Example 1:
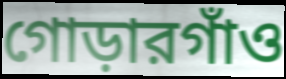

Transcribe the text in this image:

গোড়ারগাঁও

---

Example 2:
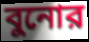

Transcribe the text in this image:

বুনোর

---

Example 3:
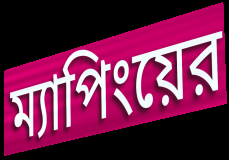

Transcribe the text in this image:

ম্যাপিংয়ের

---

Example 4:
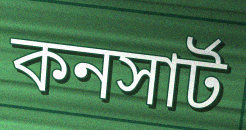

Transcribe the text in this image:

কনসার্ট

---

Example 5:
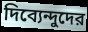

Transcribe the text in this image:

দিব্যেন্দুদের